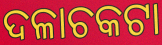
ଦଳାଚକଟା